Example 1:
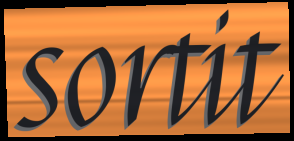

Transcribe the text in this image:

sortit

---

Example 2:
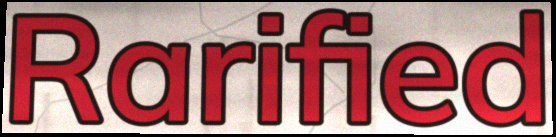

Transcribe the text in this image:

Rarified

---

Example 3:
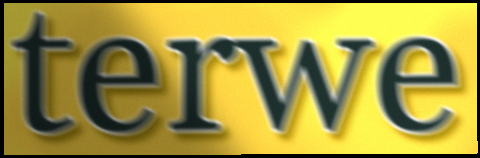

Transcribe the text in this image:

terwe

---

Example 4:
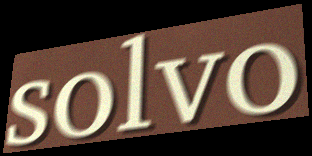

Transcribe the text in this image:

solvo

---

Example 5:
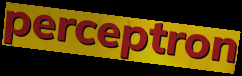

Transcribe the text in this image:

perceptron